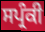
ਸਪ੍ਰੰਕੀ